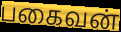
பகைவன்